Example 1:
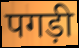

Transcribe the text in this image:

पगड़ी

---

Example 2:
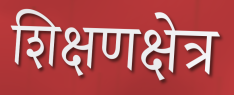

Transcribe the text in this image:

शिक्षणक्षेत्र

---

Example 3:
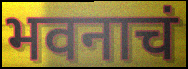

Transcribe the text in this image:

भवनाचं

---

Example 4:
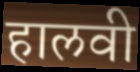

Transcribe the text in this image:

हालवी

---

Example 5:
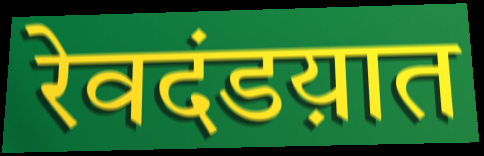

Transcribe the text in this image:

रेवदंडय़ात